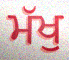
ਮੱਖੁ